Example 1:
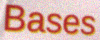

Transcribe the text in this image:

Bases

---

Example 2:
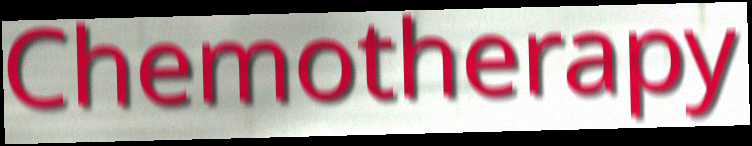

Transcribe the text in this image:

Chemotherapy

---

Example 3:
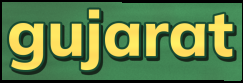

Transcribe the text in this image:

gujarat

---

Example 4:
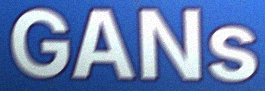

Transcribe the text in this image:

GANs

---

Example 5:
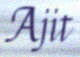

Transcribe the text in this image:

Ajit